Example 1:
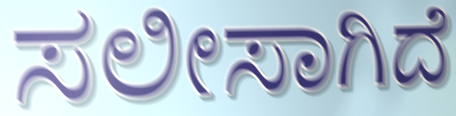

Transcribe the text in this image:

ಸಲೀಸಾಗಿದೆ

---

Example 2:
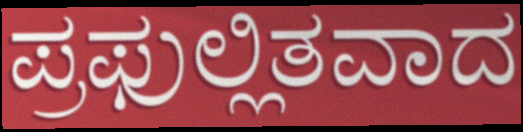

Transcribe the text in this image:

ಪ್ರಫುಲ್ಲಿತವಾದ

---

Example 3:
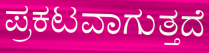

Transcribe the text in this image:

ಪ್ರಕಟವಾಗುತ್ತದೆ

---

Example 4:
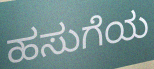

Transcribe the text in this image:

ಹಸುಗೆಯ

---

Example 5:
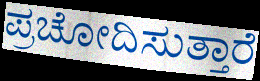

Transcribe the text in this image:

ಪ್ರಚೋದಿಸುತ್ತಾರೆ